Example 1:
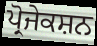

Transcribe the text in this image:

ਪ੍ਰੋਜੇਕਸ਼ਨ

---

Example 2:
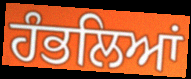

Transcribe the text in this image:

ਹੰਭਲਿਆਂ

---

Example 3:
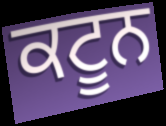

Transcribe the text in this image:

ਕਟੂਨ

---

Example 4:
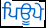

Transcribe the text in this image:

ਪਿਊਪੇ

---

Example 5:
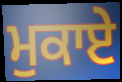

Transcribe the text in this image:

ਮੁਕਾਏ